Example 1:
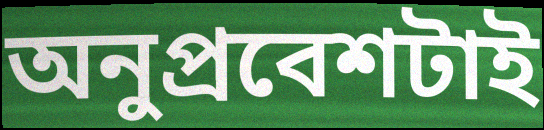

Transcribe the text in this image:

অনুপ্রবেশটাই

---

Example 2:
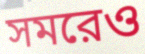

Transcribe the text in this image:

সমরেও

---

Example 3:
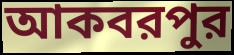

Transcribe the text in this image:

আকবরপুর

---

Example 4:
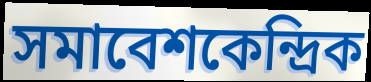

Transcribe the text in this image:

সমাবেশকেন্দ্রিক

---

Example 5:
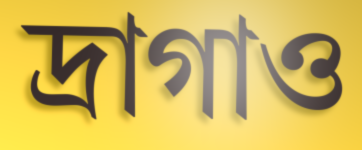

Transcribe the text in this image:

দ্রাগাও